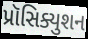
પ્રૉસિક્યુશન